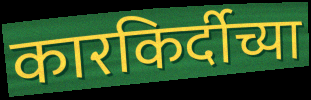
कारकिर्दीच्या